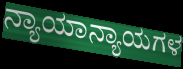
ನ್ಯಾಯಾನ್ಯಾಯಗಳ